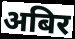
अबिर